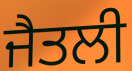
ਜੈਤਲੀ